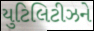
યુટિલિટીઝને